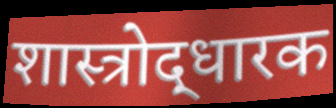
शास्त्रोद्धारक